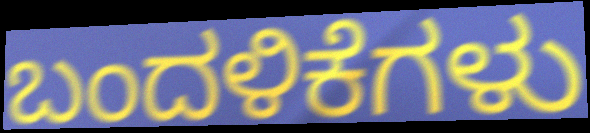
ಬಂದಳಿಕೆಗಳು